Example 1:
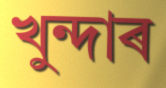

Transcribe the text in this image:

খুন্দাৰ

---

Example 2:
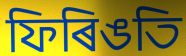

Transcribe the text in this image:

ফিৰিঙতি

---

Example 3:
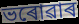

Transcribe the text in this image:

ভৰোৱাৰ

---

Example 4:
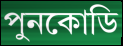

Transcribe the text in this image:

পুনকোডি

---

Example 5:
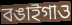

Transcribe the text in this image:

বঙাইগাও